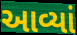
આવ્યાં